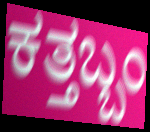
ಕತ್ತಬ್ಬಂ